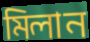
মিলান